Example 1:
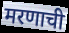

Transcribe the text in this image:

मरणाची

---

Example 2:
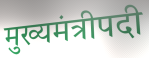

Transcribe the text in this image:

मुख्यमंत्रीपदी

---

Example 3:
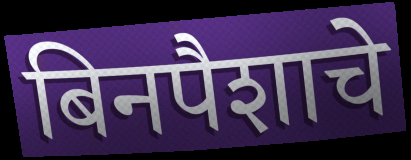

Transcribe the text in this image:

बिनपैशाचे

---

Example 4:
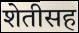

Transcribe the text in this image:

शेतीसह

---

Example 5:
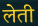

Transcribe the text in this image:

लेती